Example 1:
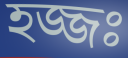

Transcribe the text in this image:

হজ্জঃ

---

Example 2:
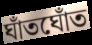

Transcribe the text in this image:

ঘাঁতঘোঁত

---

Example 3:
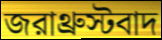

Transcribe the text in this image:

জরাথ্রুস্টবাদ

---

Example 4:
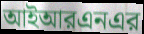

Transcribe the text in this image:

আইআরএনএর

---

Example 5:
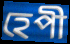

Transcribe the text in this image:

হেপী